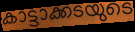
കാട്ടാക്കടയുടെ